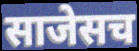
साजेसच